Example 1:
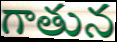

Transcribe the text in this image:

గాతున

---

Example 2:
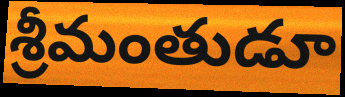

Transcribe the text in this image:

శ్రీమంతుడూ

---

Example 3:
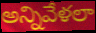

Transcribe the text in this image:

అన్నివేళలా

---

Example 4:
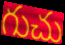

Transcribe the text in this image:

గుచు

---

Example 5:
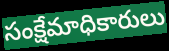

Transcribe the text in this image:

సంక్షేమాధికారులు